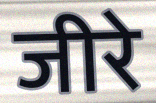
जीरे